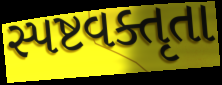
સ્પષ્ટવક્તૃતા